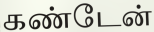
கண்டேன்